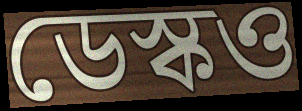
ডেস্কও